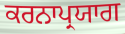
ਕਰਨਾਪ੍ਰਯਾਗ